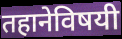
तहानेविषयी